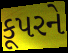
કૂપરને